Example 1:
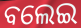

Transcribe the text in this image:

ବଲେଇ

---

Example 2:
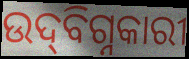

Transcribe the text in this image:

ଉଦ୍‌ବିଗ୍ନକାରୀ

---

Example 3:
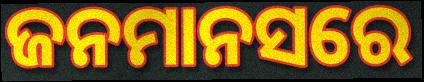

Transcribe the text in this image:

ଜନମାନସରେ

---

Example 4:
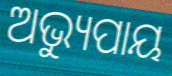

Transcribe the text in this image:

ଅଭ୍ୟୁପାୟ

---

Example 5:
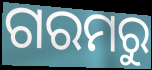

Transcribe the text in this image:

ଗରମରୁ